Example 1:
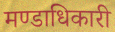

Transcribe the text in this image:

मण्डाधिकारी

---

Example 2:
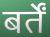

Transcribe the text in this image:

बर्तें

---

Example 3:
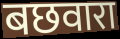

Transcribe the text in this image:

बछवारा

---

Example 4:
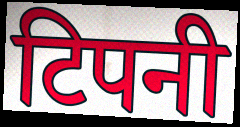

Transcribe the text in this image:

टिपनी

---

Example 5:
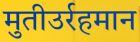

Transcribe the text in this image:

मुतीउर्रहमान